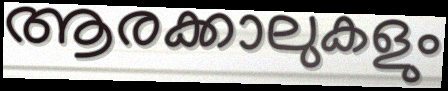
ആരക്കാലുകളും